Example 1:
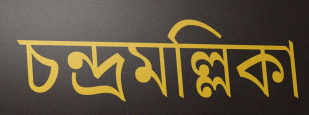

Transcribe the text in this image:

চন্দ্রমল্লিকা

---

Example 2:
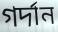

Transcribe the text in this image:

গর্দান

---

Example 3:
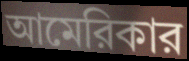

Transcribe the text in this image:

আমেরিকার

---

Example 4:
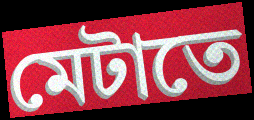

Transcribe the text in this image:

মেটাতে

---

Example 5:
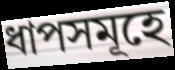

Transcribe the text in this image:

ধাপসমূহে